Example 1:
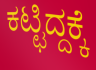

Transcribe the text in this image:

ಕಟ್ಟಿದ್ದಕ್ಕೆ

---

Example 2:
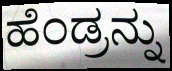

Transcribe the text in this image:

ಹೆಂಡ್ರನ್ನು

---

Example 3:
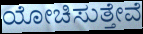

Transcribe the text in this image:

ಯೋಚಿಸುತ್ತೇವೆ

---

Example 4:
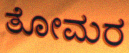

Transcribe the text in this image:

ತೋಮರ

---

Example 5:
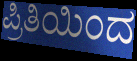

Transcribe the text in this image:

ಪ್ರಿತಿಯಿಂದ